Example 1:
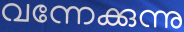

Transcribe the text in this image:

വന്നേക്കുന്നു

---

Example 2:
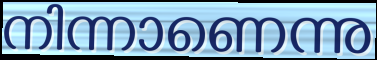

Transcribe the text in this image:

നിന്നാണെന്നു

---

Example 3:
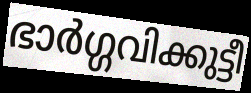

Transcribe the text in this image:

ഭാർഗ്ഗവിക്കുട്ടീ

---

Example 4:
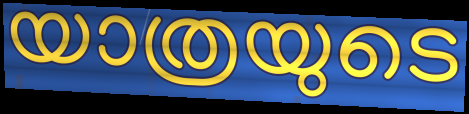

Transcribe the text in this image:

യാത്രയുടെ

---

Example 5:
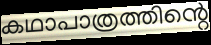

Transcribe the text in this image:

കഥാപാത്രത്തിന്റെ